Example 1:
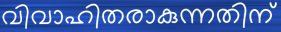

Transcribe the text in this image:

വിവാഹിതരാകുന്നതിന്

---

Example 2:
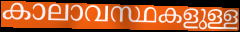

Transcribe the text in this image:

കാലാവസ്ഥകളുള്ള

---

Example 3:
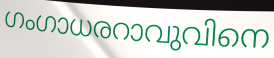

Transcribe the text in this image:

ഗംഗാധരറാവുവിനെ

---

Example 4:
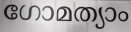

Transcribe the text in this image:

ഗോമത്യാം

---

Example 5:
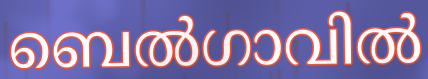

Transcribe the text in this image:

ബെൽഗാവിൽ